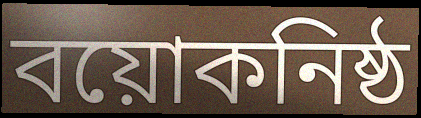
বয়োকনিষ্ঠ